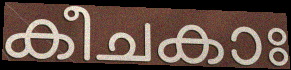
കീചകാഃ